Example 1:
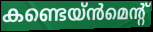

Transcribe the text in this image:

കണ്ടെയ്ൻമെന്റ്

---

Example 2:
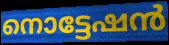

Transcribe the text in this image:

നൊട്ടേഷൻ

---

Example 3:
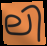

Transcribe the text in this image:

ലി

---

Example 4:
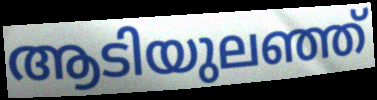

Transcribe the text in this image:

ആടിയുലഞ്ഞ്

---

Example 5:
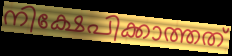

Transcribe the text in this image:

നിക്ഷേപിക്കാത്തത്